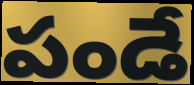
పండే